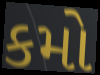
કમો